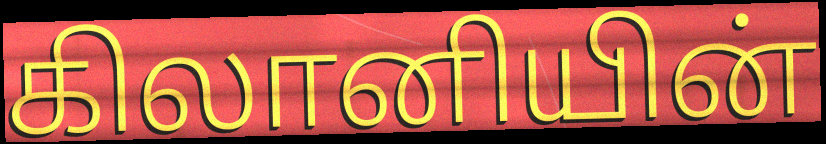
கிலானியின்